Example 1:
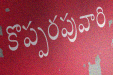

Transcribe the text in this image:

కొప్పరపువారి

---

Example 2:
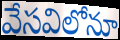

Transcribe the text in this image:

వేసవిలోనూ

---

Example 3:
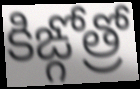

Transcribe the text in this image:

కిఙ్గోత్రో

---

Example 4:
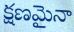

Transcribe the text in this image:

క్షణమైనా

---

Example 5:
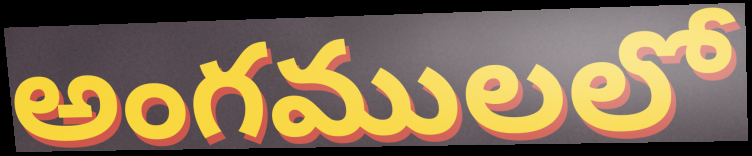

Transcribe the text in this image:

అంగములలో